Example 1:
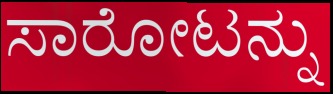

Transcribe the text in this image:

ಸಾರೋಟನ್ನು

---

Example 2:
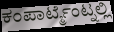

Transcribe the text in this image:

ಕಂಪಾರ್ಟ್ಮೆಂಟ್ನಲ್ಲಿ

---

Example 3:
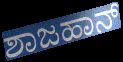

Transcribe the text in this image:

ಶಾಜಹಾನ್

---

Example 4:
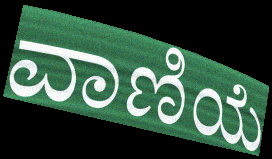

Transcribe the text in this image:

ವಾಣಿಯೆ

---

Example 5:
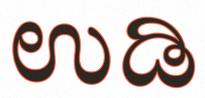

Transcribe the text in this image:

ಉಡಿ